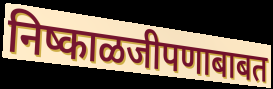
निष्काळजीपणाबाबत